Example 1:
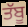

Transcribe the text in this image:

ਤੱਬੂ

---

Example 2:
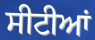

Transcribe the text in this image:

ਸੀਟੀਆਂ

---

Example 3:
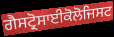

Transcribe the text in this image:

ਗੈਸਟ੍ਰੋਸਾਈਕੋਲੋਜਿਸਟ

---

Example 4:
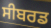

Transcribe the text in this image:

ਸੀਬਰਡ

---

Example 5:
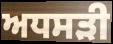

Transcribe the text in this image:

ਅਧਸੜੀ